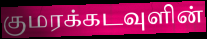
குமரக்கடவுளின்